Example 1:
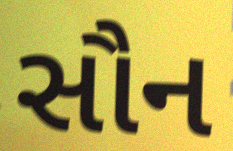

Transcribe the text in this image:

સૌન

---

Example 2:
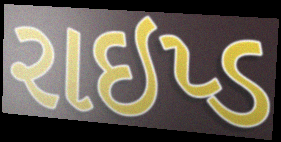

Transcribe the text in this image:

રાઇપ્ડ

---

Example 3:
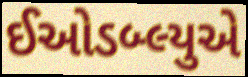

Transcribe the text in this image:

ઈઓડબ્લ્યુએ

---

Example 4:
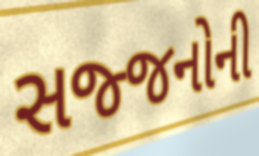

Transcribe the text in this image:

સજ્જનોની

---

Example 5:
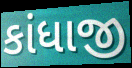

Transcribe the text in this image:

કાંધાજી